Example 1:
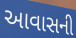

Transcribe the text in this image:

આવાસની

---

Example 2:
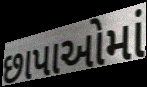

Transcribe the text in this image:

છાપાઓમાં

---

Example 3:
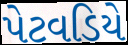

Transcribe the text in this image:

પેટવડિયે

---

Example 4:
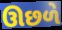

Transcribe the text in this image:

ઊછળે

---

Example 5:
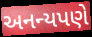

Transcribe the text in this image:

અનન્યપણે